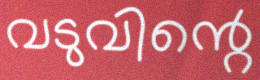
വടുവിന്റെ